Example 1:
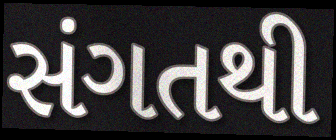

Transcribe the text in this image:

સંગતથી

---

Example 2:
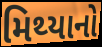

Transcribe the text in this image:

મિથ્યાનો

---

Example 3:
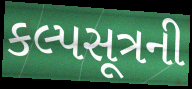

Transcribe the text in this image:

કલ્પસૂત્રની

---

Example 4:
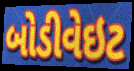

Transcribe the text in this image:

બોડીવેઇટ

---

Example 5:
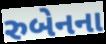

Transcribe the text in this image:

રુબેનના